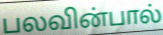
பலவின்பால்